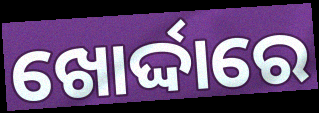
ଖୋର୍ଦ୍ଦାରେ